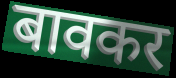
बावकर